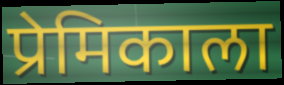
प्रेमिकाला